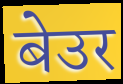
बेउर